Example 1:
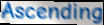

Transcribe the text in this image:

Ascending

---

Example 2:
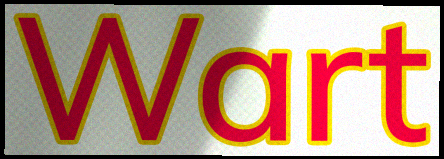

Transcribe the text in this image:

Wart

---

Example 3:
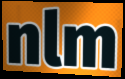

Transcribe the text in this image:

nlm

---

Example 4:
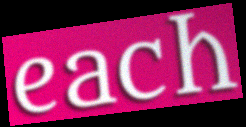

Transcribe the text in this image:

each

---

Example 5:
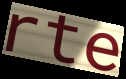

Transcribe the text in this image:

rte